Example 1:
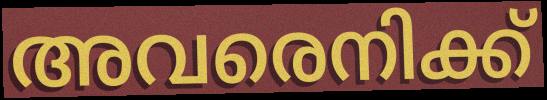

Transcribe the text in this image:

അവരെനിക്ക്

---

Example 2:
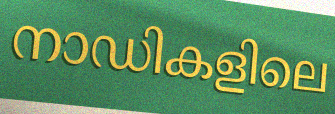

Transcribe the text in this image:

നാഡികളിലെ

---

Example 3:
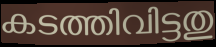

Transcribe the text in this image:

കടത്തിവിട്ടതു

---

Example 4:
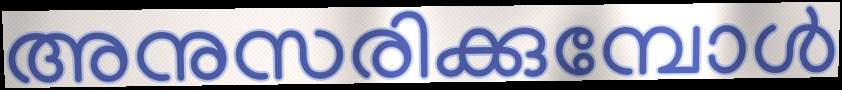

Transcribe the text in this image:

അനുസരിക്കുമ്പോൾ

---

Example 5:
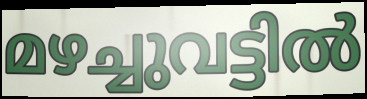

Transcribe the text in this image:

മഴച്ചുവട്ടിൽ